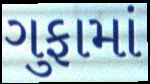
ગુફામાં